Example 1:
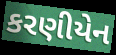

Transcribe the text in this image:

કરણીયેન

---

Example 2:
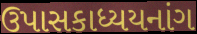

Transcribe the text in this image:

ઉપાસકાધ્યયનાંગ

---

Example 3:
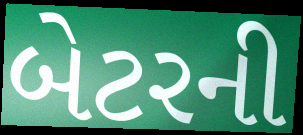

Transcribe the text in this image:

બેટરની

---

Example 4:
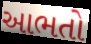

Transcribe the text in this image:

આભતો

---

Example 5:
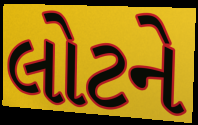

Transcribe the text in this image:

લોટને